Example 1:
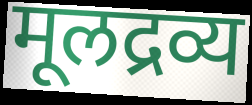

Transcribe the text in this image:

मूलद्रव्य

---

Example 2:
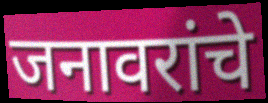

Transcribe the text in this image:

जनावरांचे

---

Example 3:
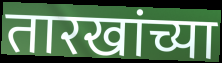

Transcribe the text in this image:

तारखांच्या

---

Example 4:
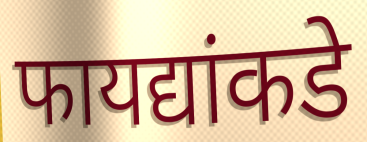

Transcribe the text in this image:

फायद्यांकडे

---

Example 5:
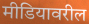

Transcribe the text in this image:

मीडियावरील